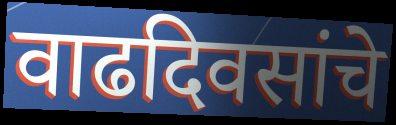
वाढदिवसांचे